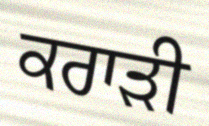
ਕਰਾੜੀ